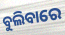
ବୁଲିବାରେ